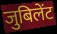
जुबिलेंट